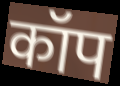
कॉप